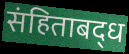
संहिताबद्ध